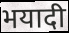
भयादी